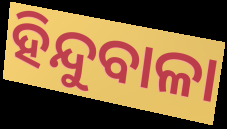
ହିନ୍ଦୁବାଳା